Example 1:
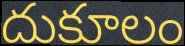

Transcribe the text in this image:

దుకూలం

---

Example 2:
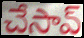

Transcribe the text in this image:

చేసావ్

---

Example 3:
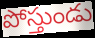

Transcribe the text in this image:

పోస్తుండు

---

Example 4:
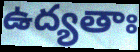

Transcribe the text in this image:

ఉద్యతాః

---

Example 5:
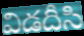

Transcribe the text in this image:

విడదీసి